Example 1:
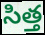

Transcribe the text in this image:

సిత్త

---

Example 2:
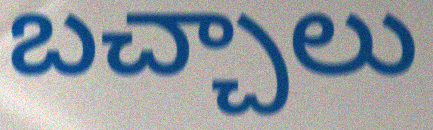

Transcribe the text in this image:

బచ్చాలు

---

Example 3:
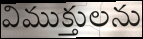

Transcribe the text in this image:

విముక్తులను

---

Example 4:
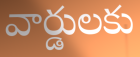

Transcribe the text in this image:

వార్డులకు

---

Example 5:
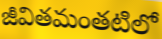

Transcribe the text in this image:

జీవితమంతటిలో